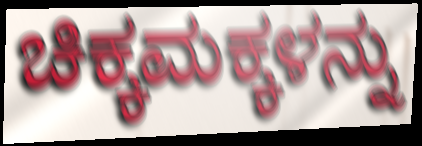
ಚಿಕ್ಕಮಕ್ಕಳನ್ನು